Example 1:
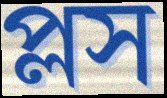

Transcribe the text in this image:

প্লস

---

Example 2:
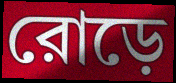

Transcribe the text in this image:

রোড়ে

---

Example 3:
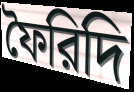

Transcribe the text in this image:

ফৈরিদি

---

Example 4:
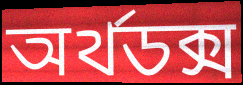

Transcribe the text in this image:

অর্থডক্স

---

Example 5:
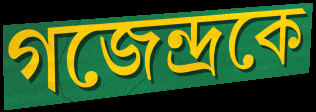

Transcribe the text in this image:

গজেন্দ্রকে